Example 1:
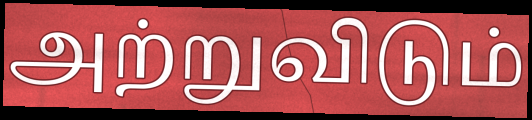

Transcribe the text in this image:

அற்றுவிடும்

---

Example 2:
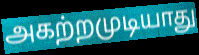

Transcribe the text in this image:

அகற்றமுடியாது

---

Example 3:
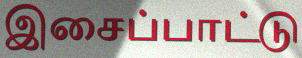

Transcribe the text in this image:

இசைப்பாட்டு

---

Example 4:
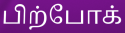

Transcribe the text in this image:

பிற்போக்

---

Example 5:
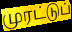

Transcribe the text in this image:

முரட்டுப்